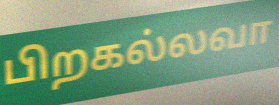
பிறகல்லவா